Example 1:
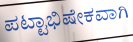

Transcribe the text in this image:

ಪಟ್ಟಾಭಿಷೇಕವಾಗಿ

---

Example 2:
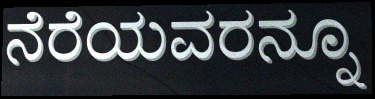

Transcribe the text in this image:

ನೆರೆಯವರನ್ನೂ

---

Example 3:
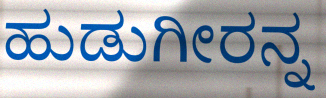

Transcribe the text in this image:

ಹುಡುಗೀರನ್ನ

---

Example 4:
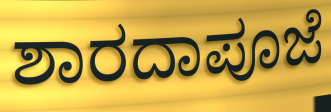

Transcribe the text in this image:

ಶಾರದಾಪೂಜೆ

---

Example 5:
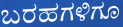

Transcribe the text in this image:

ಬರಹಗಳಿಗೂ